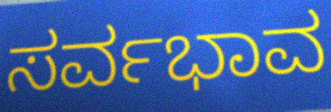
ಸರ್ವಭಾವ